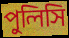
পুলিসি